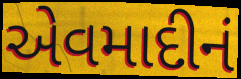
એવમાદીનં